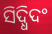
ସିଦ୍ଧିଦଂ